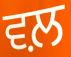
ਵਲ਼